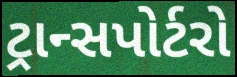
ટ્રાન્સપોર્ટરો